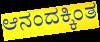
ಆನಂದಕ್ಕಿಂತ